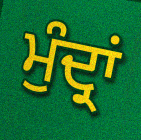
ਮੁੰਦ੍ਰਾਂ